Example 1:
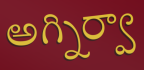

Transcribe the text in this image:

అగ్నిర్వా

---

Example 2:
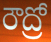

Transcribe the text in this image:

రౌద్రో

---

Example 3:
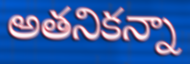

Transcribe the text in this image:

అతనికన్నా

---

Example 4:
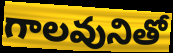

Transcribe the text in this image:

గాలవునితో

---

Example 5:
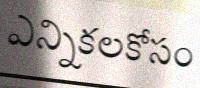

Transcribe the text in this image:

ఎన్నికలకోసం